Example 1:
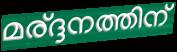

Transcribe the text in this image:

മര്ദ്ദനത്തിന്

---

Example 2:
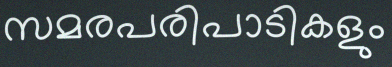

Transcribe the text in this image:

സമരപരിപാടികളും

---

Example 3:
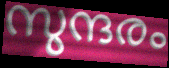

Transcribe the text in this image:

സുന്ദരം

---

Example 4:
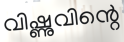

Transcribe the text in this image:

വിഷ്ണുവിന്റെ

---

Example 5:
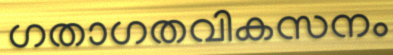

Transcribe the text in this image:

ഗതാഗതവികസനം